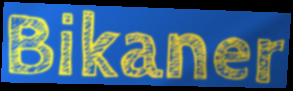
Bikaner